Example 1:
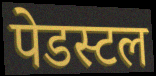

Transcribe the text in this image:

पेडस्टल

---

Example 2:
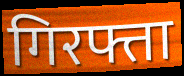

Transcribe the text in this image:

गिरफ्ता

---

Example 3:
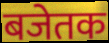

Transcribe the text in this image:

बजेतक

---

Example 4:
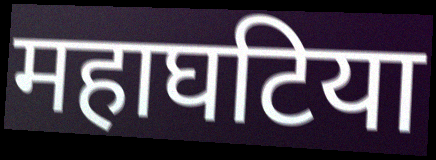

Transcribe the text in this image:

महाघटिया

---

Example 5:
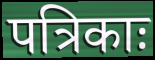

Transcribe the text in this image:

पत्रिकाः